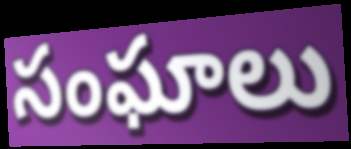
సంఘాలు